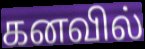
கனவில்